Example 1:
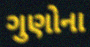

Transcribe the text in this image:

ગુણોના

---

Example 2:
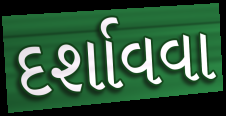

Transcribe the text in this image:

દર્શાવવા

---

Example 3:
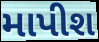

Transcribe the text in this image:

માપીશ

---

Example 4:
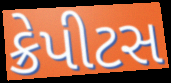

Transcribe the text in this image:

ક્રેપીટસ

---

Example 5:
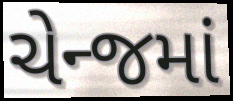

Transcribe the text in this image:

ચેન્જમાં